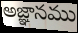
అజ్ఞానము